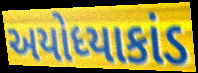
અયોધ્યાકાંડ